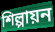
শিল্পায়ন